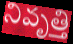
నివృత్తి